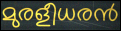
മുരളീധരൻ